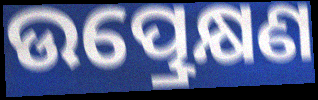
ଉତ୍ପ୍ରେକ୍ଷଣ